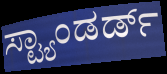
ಸ್ಟ್ಯಾಂಡರ್ಡ್